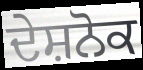
ਦੇਸ਼ਨੋਕ